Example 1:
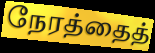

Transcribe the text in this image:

நேரத்தைத்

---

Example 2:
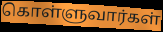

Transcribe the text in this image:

கொள்ளுவார்கள்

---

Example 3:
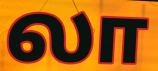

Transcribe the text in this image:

லா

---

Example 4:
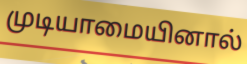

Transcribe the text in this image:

முடியாமையினால்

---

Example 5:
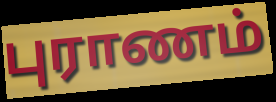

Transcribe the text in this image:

புராணம்